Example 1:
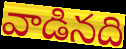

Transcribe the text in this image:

వాడినది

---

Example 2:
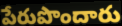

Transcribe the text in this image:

పేరుపొందారు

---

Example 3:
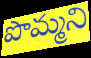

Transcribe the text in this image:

పొమ్మని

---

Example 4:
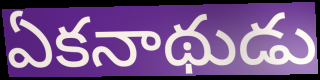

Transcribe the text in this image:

ఏకనాథుడు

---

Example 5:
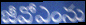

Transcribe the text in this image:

జీవోఎంను